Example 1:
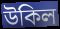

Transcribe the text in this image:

উকিল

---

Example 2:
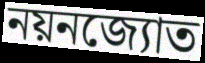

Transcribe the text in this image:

নয়নজ্যোত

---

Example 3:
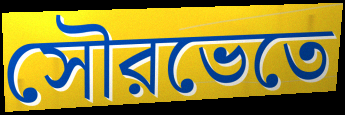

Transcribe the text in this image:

সৌরভেতে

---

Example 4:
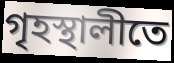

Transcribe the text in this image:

গৃহস্থালীতে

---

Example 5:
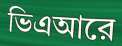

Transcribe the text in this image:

ভিএআরে